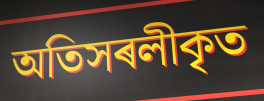
অতিসৰলীকৃত